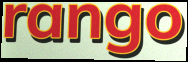
rango